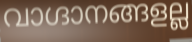
വാഗ്ദാനങ്ങളല്ല